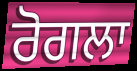
ਰੋਗਲਾ